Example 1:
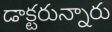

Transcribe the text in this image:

డాక్టరున్నారు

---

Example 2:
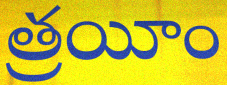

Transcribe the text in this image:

త్రయీం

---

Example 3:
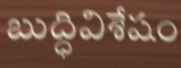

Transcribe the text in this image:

బుద్ధివిశేషం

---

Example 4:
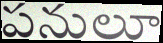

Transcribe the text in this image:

పనులూ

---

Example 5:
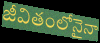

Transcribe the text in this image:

జీవితంలోనైనా